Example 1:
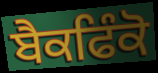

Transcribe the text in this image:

ਬੈਕਫਿੰਕੋ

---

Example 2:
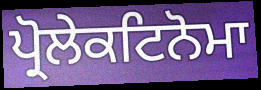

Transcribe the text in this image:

ਪ੍ਰੋਲੇਕਟਿਨੋਮਾ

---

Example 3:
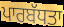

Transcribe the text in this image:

ਪਾਰਬੱਧਤਾ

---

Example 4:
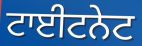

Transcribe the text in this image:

ਟਾਈਟਨੇਟ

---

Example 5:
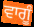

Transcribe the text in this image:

ਵਾਗੂੰ